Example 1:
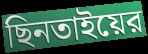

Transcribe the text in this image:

ছিনতাইয়ের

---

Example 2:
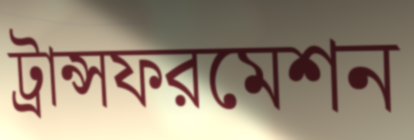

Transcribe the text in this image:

ট্রান্সফরমেশন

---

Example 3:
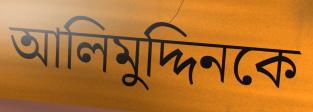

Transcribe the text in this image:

আলিমুদ্দিনকে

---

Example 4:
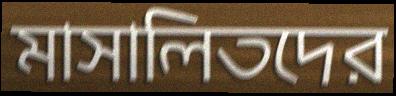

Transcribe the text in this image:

মাসালিতদের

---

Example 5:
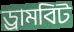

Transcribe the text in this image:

ড্রামবিট